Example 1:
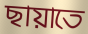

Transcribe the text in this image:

ছায়াতে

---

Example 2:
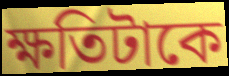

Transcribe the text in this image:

ক্ষতিটাকে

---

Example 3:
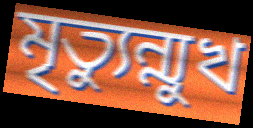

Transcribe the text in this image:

মৃত্যুন্মুখ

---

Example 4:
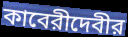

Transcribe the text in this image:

কাবেরীদেবীর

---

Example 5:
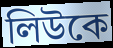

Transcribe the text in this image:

লিউকে